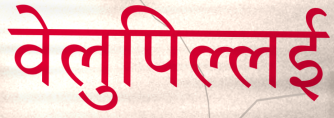
वेलुपिल्लई